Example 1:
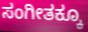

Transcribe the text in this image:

ಸಂಗೀತಕ್ಕೂ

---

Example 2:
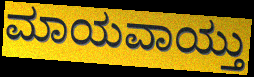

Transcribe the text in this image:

ಮಾಯವಾಯ್ತು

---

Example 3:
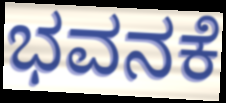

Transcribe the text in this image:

ಭವನಕೆ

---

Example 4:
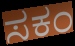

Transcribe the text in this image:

ಸಕಂ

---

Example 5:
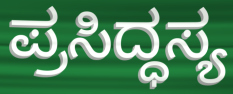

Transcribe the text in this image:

ಪ್ರಸಿದ್ಧಸ್ಯ